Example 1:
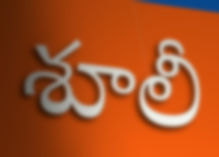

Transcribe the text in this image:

శూలీ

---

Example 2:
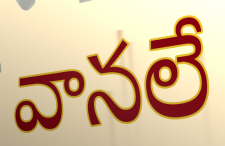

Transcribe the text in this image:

వానలే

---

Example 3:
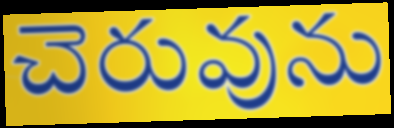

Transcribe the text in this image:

చెరువును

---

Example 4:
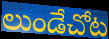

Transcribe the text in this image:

లుండేచోట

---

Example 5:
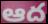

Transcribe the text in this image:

ఆద